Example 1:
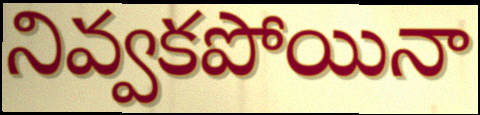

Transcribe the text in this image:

నివ్వకపోయినా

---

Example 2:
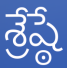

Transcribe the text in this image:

శ్రేష్ఠే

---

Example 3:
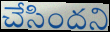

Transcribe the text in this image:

చేసిందని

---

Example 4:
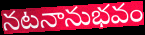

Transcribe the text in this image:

నటనానుభవం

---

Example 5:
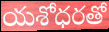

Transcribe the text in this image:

యశోధరతో